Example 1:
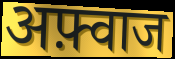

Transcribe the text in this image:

अफ़्वाज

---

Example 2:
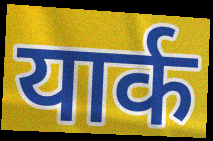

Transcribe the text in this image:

यार्क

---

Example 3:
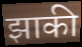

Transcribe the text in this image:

झाकी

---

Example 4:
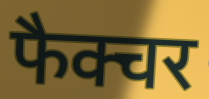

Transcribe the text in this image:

फैक्चर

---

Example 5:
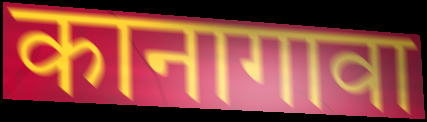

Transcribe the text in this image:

कानागावा